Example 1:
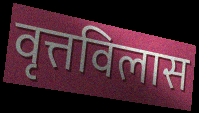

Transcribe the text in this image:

वृत्तविलास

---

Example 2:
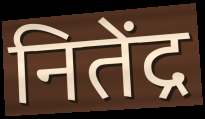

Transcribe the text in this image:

नितेंद्र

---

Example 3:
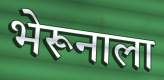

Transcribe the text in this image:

भेरूनाला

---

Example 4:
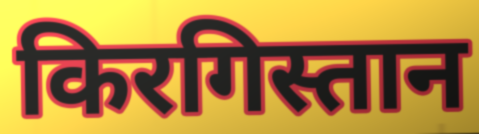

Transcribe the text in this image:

किरगिस्तान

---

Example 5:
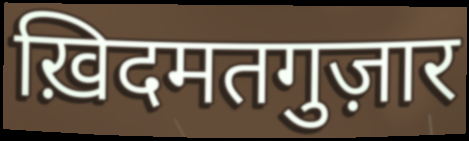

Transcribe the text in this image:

ख़िदमतगुज़ार